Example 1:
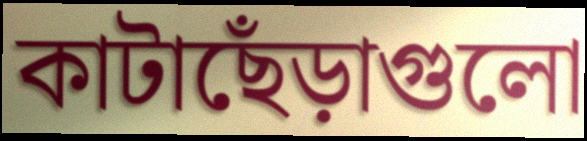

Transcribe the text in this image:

কাটাছেঁড়াগুলো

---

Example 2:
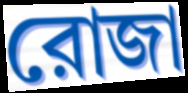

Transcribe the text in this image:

রোজা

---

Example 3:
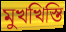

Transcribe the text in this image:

মুখখিস্তি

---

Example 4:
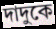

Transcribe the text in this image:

দাদুকে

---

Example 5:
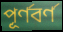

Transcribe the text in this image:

পূর্ণবর্ণ